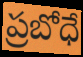
ప్రబోధే